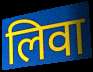
लिवा